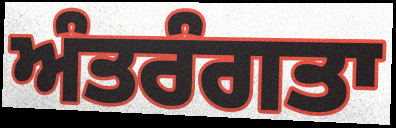
ਅੰਤਰੰਗਤਾ